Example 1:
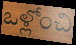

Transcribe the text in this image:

ఒళ్లోంచి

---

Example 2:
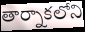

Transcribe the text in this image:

తార్నాకలోని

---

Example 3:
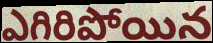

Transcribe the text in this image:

ఎగిరిపోయిన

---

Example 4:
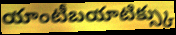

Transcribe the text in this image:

యాంటీబయాటిక్స్కు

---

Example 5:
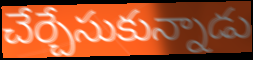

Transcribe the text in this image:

చేర్చేసుకున్నాడు